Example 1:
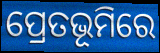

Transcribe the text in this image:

ପ୍ରେତଭୂମିରେ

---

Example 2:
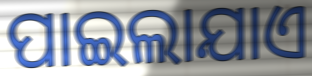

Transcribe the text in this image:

ପାଇଲାଯାଏ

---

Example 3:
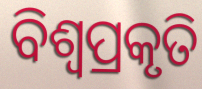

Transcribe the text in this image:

ବିଶ୍ଵପ୍ରକୃତି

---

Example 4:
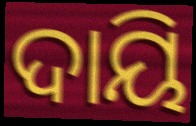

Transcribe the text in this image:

ଦାୟି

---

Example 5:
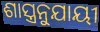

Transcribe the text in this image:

ଶାସ୍ତ୍ରନୁଯାୟୀ